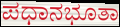
ಪಧಾನಭೂತಾ